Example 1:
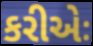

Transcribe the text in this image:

કરીએઃ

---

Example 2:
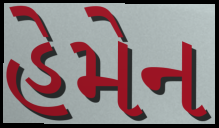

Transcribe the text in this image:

હેમેન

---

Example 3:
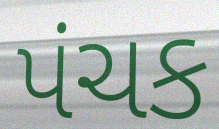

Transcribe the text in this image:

પંચક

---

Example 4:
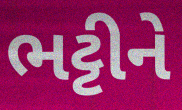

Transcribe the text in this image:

ભટ્ટીને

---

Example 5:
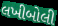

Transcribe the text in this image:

લખીબોલી